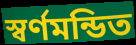
স্বর্ণমন্ডিত